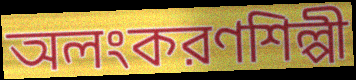
অলংকরণশিল্পী